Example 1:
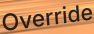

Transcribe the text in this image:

Override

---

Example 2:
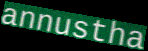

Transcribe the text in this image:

annustha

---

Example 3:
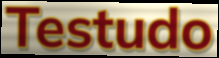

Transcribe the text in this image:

Testudo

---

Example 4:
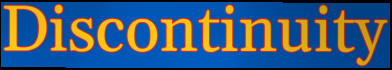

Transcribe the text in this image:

Discontinuity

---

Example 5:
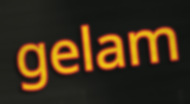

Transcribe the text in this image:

gelam